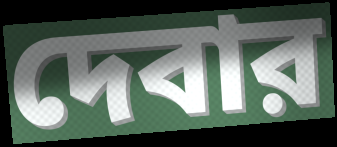
দেবার